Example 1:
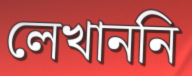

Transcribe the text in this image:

লেখাননি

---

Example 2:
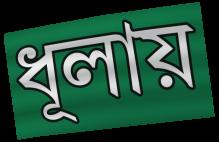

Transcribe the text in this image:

ধূলায়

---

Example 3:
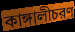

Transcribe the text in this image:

কাঙ্গালীচরণ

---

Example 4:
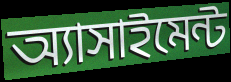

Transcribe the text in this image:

অ্যাসাইমেন্ট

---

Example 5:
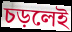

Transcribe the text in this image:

চড়লেই